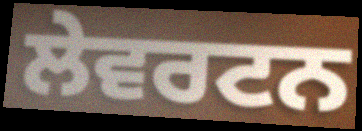
ਲੇਵਰਟਨ